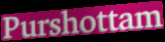
Purshottam